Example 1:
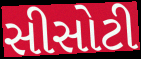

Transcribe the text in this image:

સીસોટી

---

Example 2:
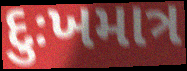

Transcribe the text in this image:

દુઃખમાત્ર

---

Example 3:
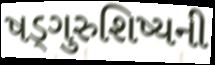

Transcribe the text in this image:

ષડ્ગુરુશિષ્યની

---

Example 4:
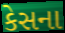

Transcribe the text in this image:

કેસના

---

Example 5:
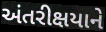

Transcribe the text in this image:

અંતરીક્ષયાને